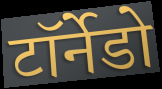
टॉर्नेडो